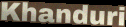
Khanduri